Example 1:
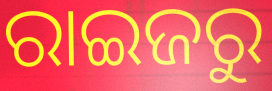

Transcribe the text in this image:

ରାଇଜରୁ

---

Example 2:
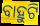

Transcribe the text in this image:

ବାହୁଟି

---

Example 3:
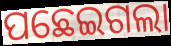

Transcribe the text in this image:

ପଛେଇଗଲା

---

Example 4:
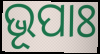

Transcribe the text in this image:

ଭୂପାଃ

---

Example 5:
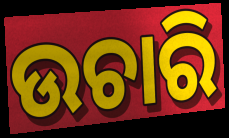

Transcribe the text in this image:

ଉଚାରି